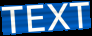
TEXT